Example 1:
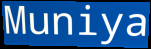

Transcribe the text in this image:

Muniya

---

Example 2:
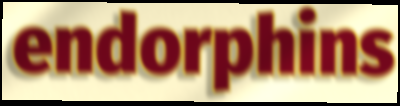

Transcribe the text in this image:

endorphins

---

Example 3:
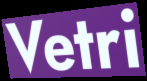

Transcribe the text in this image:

Vetri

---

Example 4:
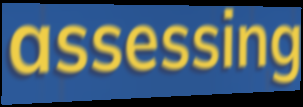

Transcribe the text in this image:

assessing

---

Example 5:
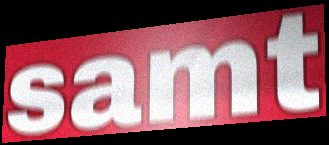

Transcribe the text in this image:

samt